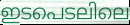
ഇടപെടലിലെ